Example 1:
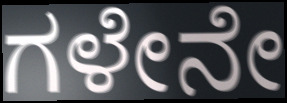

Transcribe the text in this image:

ಗಳೇನೇ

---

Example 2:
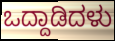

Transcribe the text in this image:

ಒದ್ದಾಡಿದಳು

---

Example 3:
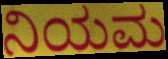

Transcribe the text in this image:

ನಿಯಮ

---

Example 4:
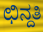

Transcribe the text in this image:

ಛಿನ್ದತಿ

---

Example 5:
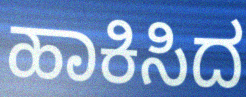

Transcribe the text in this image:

ಹಾಕಿಸಿದ